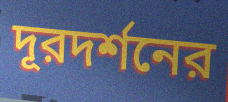
দূরদর্শনের